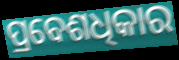
ପ୍ରବେଶଧିକାର